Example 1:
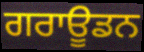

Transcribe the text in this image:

ਗਰਾਊਡਨ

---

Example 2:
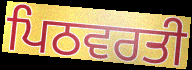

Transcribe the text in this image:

ਪਿਠਵਰਤੀ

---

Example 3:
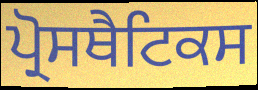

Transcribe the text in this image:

ਪ੍ਰੋਸਥੈਟਿਕਸ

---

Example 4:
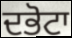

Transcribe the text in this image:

ਦਭੋਟਾ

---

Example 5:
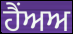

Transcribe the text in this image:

ਹੈਂਅਅ